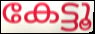
കേട്ടൂ